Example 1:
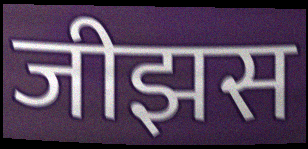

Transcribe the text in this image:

जीझस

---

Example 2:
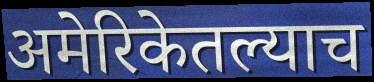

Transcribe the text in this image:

अमेरिकेतल्याच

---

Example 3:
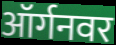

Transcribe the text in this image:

ऑर्गनवर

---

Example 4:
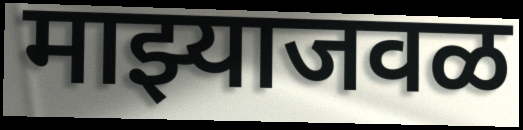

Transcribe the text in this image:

माझ्याजवळ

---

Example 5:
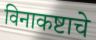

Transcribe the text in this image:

विनाकष्टाचे